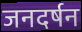
जनदर्षन